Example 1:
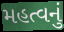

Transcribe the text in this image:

મહત્વનું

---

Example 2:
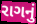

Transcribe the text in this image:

રાગનું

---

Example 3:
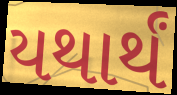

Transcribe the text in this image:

યથાર્થં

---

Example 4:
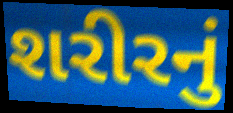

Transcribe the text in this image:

શરીરનું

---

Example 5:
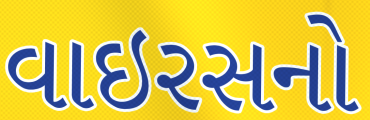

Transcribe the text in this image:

વાઇરસનો